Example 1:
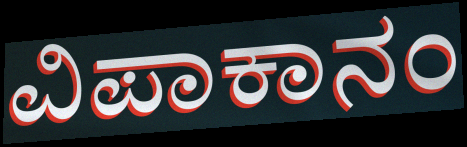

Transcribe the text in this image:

ವಿಪಾಕಾನಂ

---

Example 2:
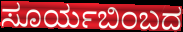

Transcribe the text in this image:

ಸೂರ್ಯಬಿಂಬದ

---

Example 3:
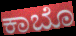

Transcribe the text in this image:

ಕಾಬೊ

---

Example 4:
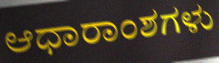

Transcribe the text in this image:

ಆಧಾರಾಂಶಗಳು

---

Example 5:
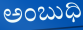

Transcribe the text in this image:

ಅಂಬುಧಿ